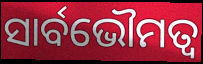
ସାର୍ବଭୌମତ୍ଵ